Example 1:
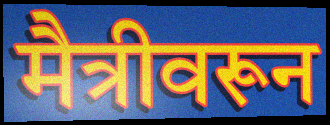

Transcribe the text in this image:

मैत्रीवरून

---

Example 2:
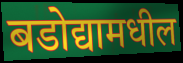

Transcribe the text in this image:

बडोद्यामधील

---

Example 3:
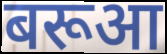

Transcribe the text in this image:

बरूआ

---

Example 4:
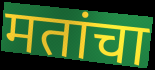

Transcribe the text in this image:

मतांचा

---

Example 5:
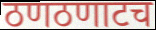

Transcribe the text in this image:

ठणठणाटच